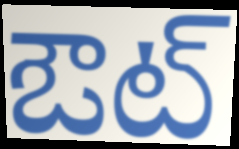
ఔట్